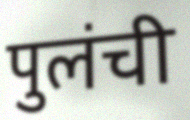
पुलंची